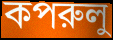
কপরুলু